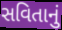
સવિતાનું